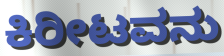
ಕಿರೀಟವನು